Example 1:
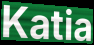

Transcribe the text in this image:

Katia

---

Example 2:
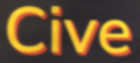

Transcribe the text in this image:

Cive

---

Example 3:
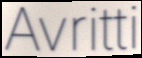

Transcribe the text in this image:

Avritti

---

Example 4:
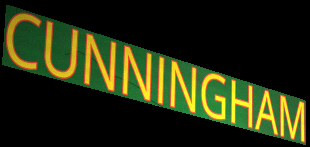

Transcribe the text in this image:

CUNNINGHAM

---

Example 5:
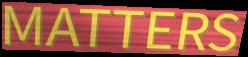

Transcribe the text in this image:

MATTERS